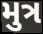
મુત્ર